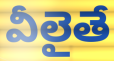
వీలైతే